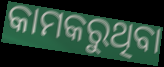
କାମକରୁଥିବା